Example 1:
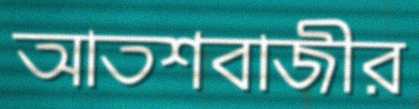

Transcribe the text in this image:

আতশবাজীর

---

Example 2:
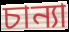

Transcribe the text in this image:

চান্যা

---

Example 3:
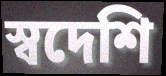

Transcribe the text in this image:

স্বদেশি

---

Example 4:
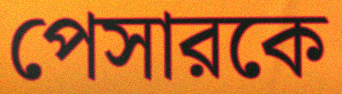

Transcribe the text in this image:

পেসারকে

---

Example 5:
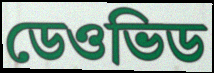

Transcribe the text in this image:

ডেওভিড